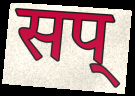
सप्